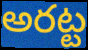
అరట్ట